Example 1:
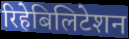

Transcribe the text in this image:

रिहेबिलिटेशन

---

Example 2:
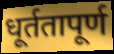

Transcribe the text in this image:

धूर्ततापूर्ण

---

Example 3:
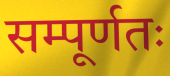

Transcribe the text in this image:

सम्पूर्णतः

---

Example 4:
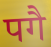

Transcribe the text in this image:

पगै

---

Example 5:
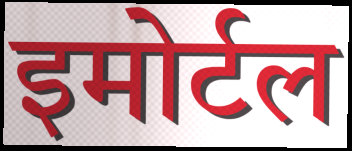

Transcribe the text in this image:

इमोर्टल